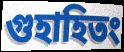
গুহাহিতং